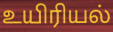
உயிரியல்